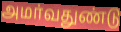
அமர்வதுண்டு